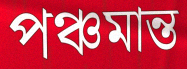
পঞ্চমান্ত